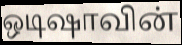
ஒடிஷாவின்